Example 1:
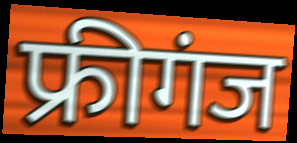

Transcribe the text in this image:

फ्रीगंज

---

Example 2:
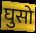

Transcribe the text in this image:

घुसो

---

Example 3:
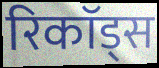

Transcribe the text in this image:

रिकॉड्स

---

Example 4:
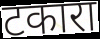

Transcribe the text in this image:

टकारा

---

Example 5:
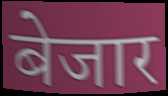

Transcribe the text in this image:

बेजार